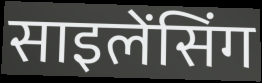
साइलेंसिंग